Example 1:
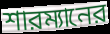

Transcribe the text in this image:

শারম্যানের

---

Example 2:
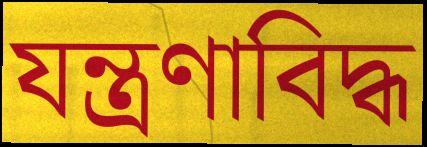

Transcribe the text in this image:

যন্ত্রণাবিদ্ধ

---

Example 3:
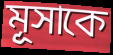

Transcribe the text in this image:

মূসাকে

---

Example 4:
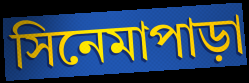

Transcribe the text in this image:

সিনেমাপাড়া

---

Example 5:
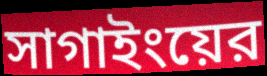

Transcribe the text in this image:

সাগাইংয়ের